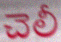
చెలీ